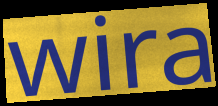
wira